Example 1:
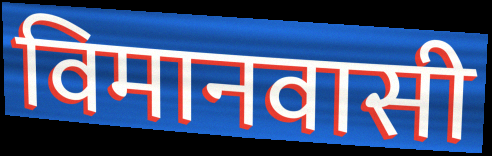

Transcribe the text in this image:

विमानवासी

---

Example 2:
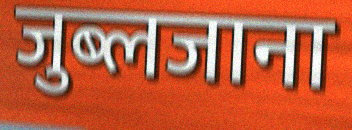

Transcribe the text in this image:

जुब्लजाना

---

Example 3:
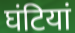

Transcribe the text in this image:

घंटियां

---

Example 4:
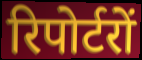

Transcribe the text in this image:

रिपोर्टरों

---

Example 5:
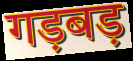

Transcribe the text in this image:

गड़बड़